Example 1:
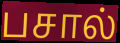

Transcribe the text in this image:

பசால்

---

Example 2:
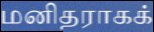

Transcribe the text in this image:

மனிதராகக்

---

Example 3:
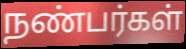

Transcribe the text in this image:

நண்பர்கள்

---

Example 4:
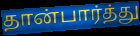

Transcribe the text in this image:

தான்பார்த்து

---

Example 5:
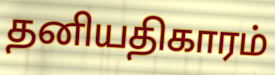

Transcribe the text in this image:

தனியதிகாரம்